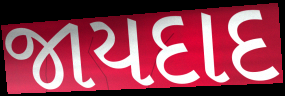
જાયદાદ